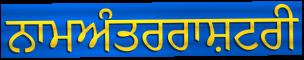
ਨਾਮਅੰਤਰਰਾਸ਼ਟਰੀ